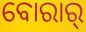
ବୋରାର୍